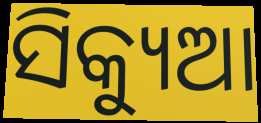
ସିକ୍ୟୁଆ